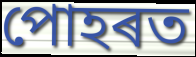
পোহৰত